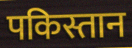
पकिस्तान